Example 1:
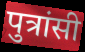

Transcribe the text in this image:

पुत्रांसी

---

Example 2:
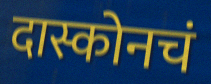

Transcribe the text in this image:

दास्कोनचं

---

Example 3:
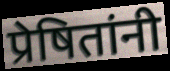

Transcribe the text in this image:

प्रेषितांनी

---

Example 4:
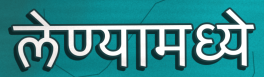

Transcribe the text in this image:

लेण्यामध्ये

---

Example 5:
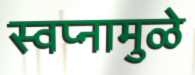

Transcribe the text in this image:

स्वप्नामुळे